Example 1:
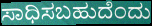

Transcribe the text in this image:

ಸಾಧಿಸಬಹುದೆಂದು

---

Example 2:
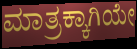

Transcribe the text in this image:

ಮಾತ್ರಕ್ಕಾಗಿಯೇ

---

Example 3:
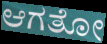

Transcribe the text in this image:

ಆಗತೋ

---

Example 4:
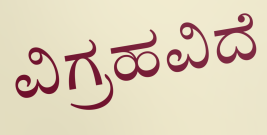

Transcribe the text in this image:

ವಿಗ್ರಹವಿದೆ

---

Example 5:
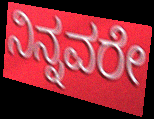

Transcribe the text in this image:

ನಿನ್ನವರೇ